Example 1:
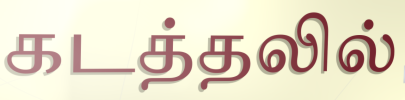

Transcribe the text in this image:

கடத்தலில்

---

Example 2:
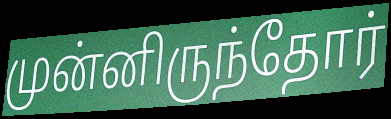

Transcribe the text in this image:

முன்னிருந்தோர்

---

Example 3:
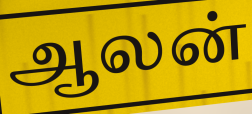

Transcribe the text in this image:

ஆலன்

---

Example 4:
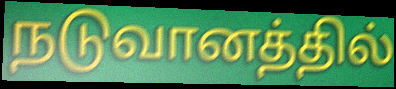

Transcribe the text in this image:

நடுவானத்தில்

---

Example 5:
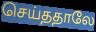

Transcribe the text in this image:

செய்ததாலே